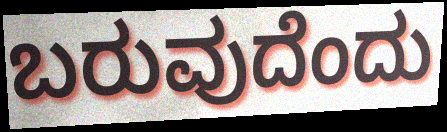
ಬರುವುದೆಂದು